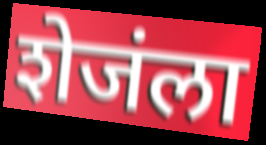
शेजंला